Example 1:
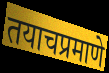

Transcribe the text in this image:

तयाचप्रमाणे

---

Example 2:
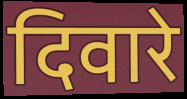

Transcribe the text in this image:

दिवारे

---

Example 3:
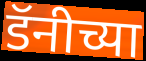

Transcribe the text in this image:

डॅनीच्या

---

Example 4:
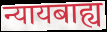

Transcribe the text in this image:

न्यायबाह्य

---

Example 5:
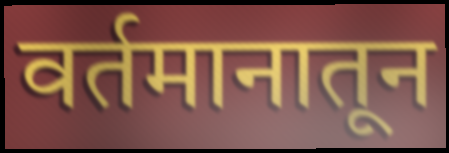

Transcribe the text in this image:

वर्तमानातून